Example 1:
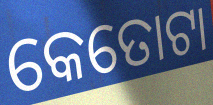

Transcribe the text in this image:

କେତୋଟା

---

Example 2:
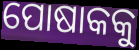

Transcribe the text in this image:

ପୋଷାକକୁ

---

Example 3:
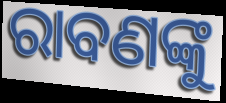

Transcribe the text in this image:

ରାବଣଙ୍କୁ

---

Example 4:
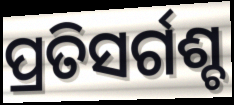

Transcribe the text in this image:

ପ୍ରତିସର୍ଗଶ୍ଚ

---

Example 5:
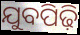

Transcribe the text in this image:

ଯୁବପିଢ଼ି